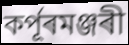
কৰ্পূৰমঞ্জৰী